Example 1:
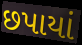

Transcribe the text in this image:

છપાયાં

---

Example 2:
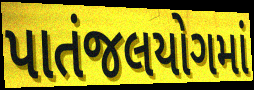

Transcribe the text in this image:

પાતંજલયોગમાં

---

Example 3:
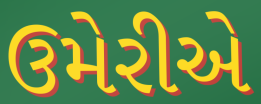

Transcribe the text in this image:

ઉમેરીએ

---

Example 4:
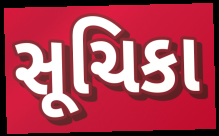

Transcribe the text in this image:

સૂચિકા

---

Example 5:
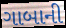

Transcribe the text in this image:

ગાબાની